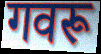
गवरू